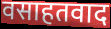
वसाहतवाद